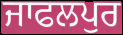
ਜਾਫਲਪੁਰ